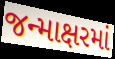
જન્માક્ષરમાં